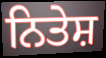
ਨਿਤੇਸ਼